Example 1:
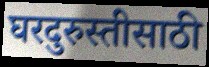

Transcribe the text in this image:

घरदुरुस्तीसाठी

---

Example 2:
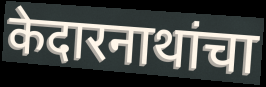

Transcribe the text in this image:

केदारनाथांचा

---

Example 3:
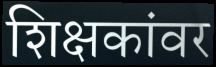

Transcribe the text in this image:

शिक्षकांवर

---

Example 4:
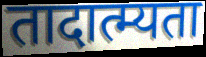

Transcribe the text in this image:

तादात्म्यता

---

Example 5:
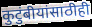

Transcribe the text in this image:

कुटुंबीयांसाठीही